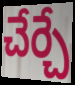
చేర్చే